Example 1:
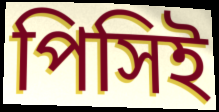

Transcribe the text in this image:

পিসিই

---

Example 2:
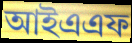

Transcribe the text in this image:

আইএএফ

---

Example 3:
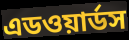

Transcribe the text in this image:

এডওয়ার্ডস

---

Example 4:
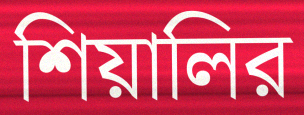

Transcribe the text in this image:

শিয়ালির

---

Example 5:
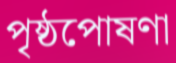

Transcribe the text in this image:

পৃষ্ঠপোষণা